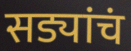
सड्यांचं